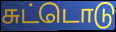
சுட்டொடு